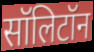
सॉलिटॉन